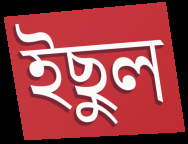
ইছুল